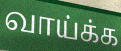
வாய்க்க